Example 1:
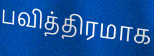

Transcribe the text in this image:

பவித்திரமாக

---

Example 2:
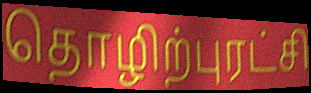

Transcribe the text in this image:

தொழிற்புரட்சி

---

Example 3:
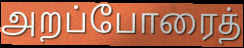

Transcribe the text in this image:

அறப்போரைத்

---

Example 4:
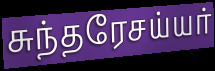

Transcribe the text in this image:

சுந்தரேசய்யர்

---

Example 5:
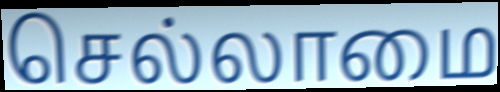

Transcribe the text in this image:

செல்லாமை